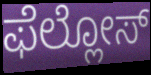
ಫೆಲ್ಲೋಸ್